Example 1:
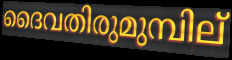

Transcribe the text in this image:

ദൈവതിരുമുമ്പില്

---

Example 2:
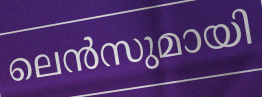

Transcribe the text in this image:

ലെൻസുമായി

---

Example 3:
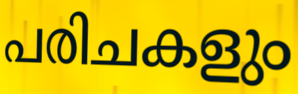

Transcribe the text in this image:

പരിചകളും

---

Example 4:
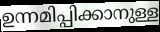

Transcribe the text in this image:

ഉന്നമിപ്പിക്കാനുള്ള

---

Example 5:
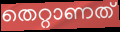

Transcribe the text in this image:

തെറ്റാണത്